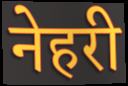
नेहरी